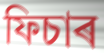
ফিচাৰ